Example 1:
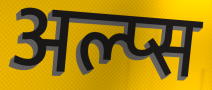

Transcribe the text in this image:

अल्प्स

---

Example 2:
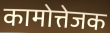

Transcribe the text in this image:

कामोत्तेजक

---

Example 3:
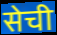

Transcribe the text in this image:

सेची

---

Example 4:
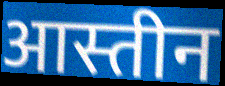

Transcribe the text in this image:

आस्तीन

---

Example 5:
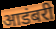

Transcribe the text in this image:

आडंबरी